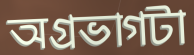
অগ্রভাগটা